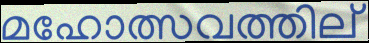
മഹോത്സവത്തില്